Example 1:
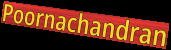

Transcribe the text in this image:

Poornachandran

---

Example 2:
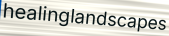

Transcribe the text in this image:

healinglandscapes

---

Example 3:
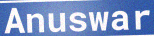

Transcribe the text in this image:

Anuswar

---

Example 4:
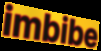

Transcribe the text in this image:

imbibe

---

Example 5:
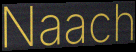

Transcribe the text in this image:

Naach